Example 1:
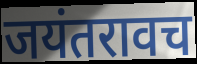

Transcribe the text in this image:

जयंतरावच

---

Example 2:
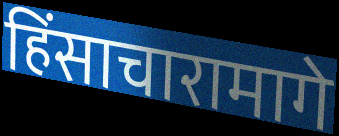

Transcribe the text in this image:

हिंसाचारामागे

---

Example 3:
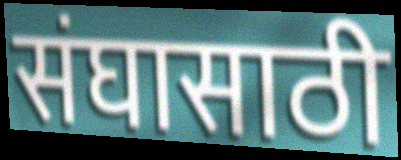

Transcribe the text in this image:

संघासाठी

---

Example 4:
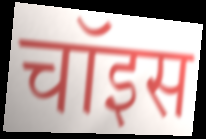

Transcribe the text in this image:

चॉइस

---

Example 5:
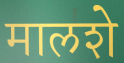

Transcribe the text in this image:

मालशे